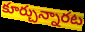
కూర్చున్నారట